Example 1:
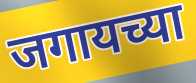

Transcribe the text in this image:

जगायच्या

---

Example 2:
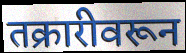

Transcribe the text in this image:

तक्रारीवरून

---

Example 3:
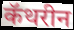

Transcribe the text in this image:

कॅथरीन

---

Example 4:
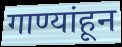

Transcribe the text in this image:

गाण्यांहून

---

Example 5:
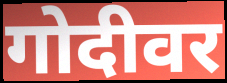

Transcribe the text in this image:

गोदीवर